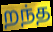
றந்த